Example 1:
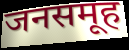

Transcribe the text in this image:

जनसमूह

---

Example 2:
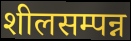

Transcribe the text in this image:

शीलसम्पन्न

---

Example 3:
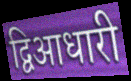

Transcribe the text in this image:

द्विआधारी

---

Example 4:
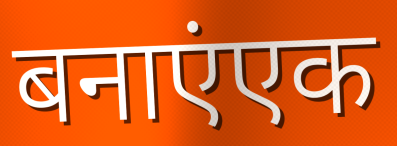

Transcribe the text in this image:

बनाएंएक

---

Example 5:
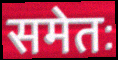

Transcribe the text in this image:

समेतः